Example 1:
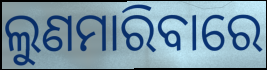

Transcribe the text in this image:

ଲୁଣମାରିବାରେ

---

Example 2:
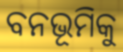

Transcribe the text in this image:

ବନଭୂମିକୁ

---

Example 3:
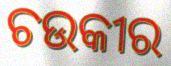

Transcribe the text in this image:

ଚଉକୀର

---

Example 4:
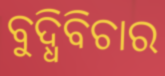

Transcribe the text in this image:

ବୁଦ୍ଧିବିଚାର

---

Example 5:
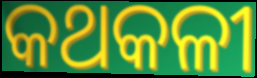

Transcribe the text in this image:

କଥକଳୀ